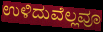
ಉಳಿದುವೆಲ್ಲವೂ